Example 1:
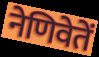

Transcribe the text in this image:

नेणिवेतें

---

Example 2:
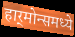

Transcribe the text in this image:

हार्मोन्समध्ये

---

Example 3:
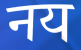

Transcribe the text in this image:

नय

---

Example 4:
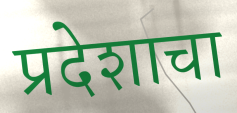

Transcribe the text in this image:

प्रदेशाचा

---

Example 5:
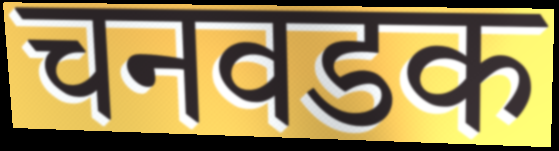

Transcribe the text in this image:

चनवडक